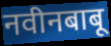
नवीनबाबू